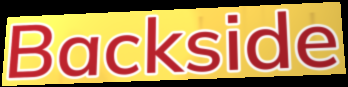
Backside